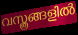
വസ്ത്രങ്ങളിൽ